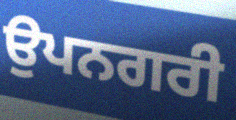
ਉਪਨਗਰੀ